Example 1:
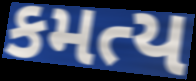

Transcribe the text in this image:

કમત્ય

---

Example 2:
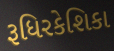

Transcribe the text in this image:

રૂધિરકેશિકા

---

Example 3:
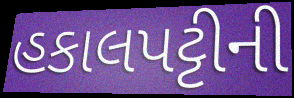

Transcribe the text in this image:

હકાલપટ્ટીની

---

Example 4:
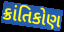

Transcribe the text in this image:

ક્રાંતિકોણ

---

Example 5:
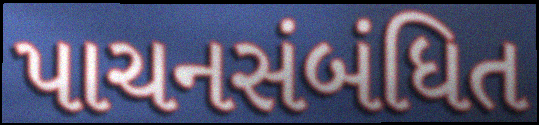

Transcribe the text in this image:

પાચનસંબંધિત